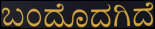
ಬಂದೊದಗಿದೆ